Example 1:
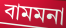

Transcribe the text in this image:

বামমনা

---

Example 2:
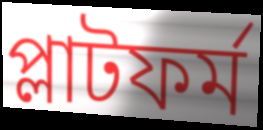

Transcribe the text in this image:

প্লাটফর্ম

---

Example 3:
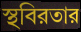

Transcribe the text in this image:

স্থবিরতার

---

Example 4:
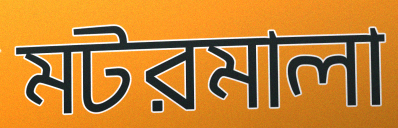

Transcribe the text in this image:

মটরমালা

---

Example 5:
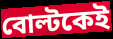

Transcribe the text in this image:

বোল্টকেই